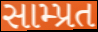
સામ્પ્રત